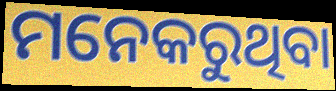
ମନେକରୁଥିବା